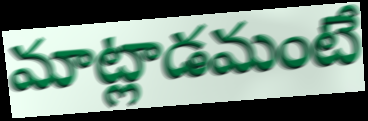
మాట్లాడమంటే